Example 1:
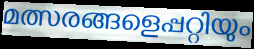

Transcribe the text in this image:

മത്സരങ്ങളെപ്പറ്റിയും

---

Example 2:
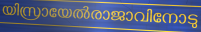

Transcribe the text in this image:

യിസ്രായേൽരാജാവിനോടു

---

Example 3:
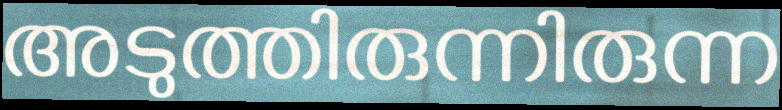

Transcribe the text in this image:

അടുത്തിരുന്നിരുന്ന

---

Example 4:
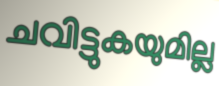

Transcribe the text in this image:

ചവിട്ടുകയുമില്ല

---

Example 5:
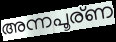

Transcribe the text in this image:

അന്നപൂര്ണ